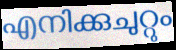
എനിക്കുചുറ്റും